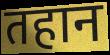
तहान